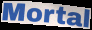
Mortal